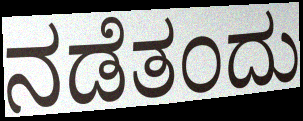
ನಡೆತಂದು